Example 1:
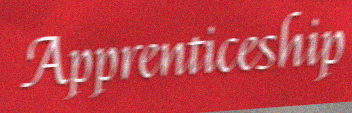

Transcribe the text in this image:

Apprenticeship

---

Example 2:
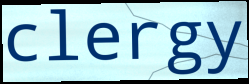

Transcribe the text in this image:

clergy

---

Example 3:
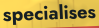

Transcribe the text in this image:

specialises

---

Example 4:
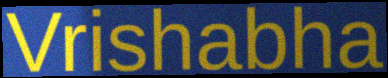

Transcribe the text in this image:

Vrishabha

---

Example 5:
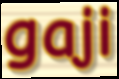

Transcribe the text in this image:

gaji